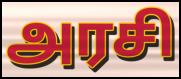
அரசி